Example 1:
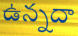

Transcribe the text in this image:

ఉన్నదా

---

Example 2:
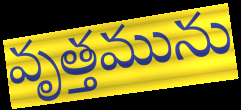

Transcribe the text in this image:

వృత్తమును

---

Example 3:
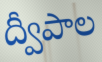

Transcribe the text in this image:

ద్వీపాల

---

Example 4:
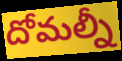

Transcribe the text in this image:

దోమల్నీ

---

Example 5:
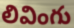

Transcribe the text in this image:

లివింగు